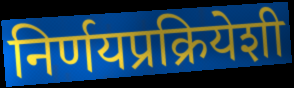
निर्णयप्रक्रियेशी